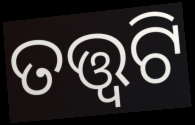
ତତ୍ତ୍ଵଟି